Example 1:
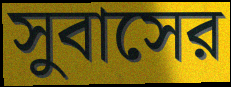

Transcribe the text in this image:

সুবাসের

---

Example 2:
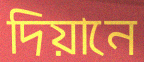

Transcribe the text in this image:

দিয়ানে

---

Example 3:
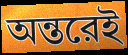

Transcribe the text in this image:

অন্তরেই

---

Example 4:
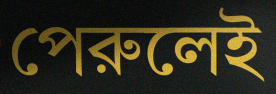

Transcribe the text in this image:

পেরুলেই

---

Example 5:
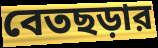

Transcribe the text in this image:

বেতছড়ার